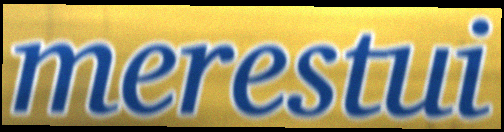
merestui